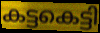
കട്ടകെട്ടി